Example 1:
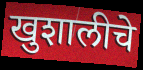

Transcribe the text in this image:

खुशालीचे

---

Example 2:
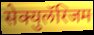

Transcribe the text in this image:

सेक्युलॅरिजम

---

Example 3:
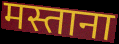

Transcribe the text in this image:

मस्ताना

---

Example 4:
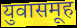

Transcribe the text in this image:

युवासमूह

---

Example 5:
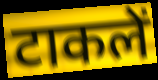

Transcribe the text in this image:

टाकलें